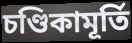
চণ্ডিকামূর্তি